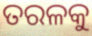
ତରଳକୁ